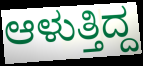
ಆಳುತ್ತಿದ್ದ